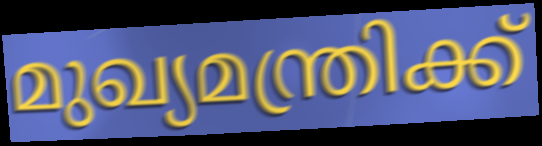
മുഖ്യമന്ത്രിക്ക്